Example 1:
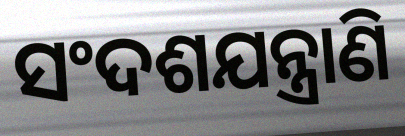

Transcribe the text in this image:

ସଂଦଶଯନ୍ତ୍ରାଣି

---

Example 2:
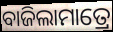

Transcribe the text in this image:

ବାଜିଲାମାତ୍ରେ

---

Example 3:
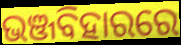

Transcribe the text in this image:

ଭଞ୍ଜବିହାରରେ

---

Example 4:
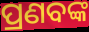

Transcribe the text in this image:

ପ୍ରଣବଙ୍କ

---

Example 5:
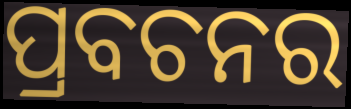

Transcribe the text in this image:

ପ୍ରବଚନର